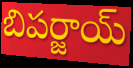
బిపర్జాయ్